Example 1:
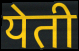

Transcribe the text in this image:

येती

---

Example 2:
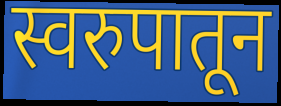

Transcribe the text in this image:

स्वरुपातून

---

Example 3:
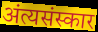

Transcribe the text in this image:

अंत्यसंस्कार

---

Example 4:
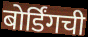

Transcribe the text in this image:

बोर्डिंगची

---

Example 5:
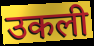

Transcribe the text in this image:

उकली